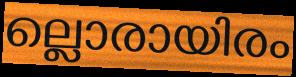
ല്ലൊരായിരം